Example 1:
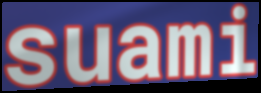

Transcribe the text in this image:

suami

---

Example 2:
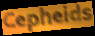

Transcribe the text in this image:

Cepheids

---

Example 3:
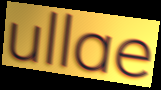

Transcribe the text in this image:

ullae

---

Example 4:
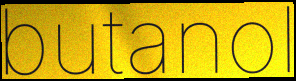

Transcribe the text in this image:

butanol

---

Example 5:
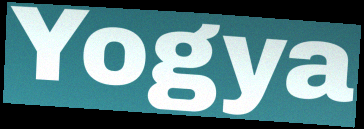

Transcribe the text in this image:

Yogya